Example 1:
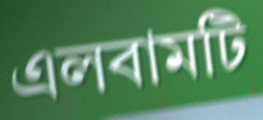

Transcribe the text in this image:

এলবামটি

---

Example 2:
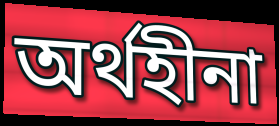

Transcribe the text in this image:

অর্থহীনা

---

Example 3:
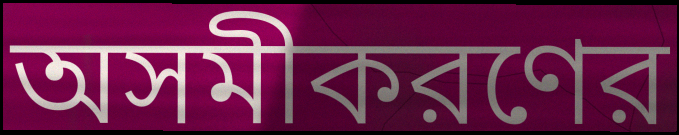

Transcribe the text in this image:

অসমীকরণের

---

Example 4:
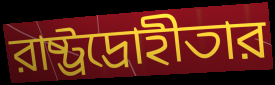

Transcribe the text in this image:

রাষ্ট্রদ্রোহীতার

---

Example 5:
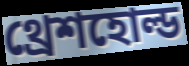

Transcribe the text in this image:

থ্রেশহোল্ড